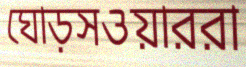
ঘোড়সওয়াররা